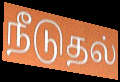
நீடுதல்